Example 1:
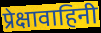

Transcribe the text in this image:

प्रेक्षावाहिनी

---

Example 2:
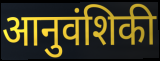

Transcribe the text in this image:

आनुवंशिकी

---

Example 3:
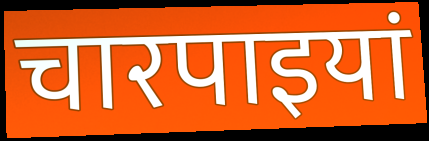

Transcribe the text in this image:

चारपाइयां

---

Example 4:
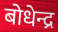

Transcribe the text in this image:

बोधेन्द्र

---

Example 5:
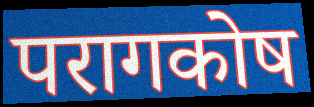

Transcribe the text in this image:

परागकोष